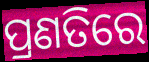
ପ୍ରଣତିରେ